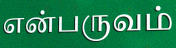
என்பருவம்